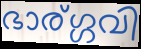
ഭാര്ഗ്ഗവി